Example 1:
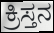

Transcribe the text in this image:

ಕ್ರಿಸ್ತನ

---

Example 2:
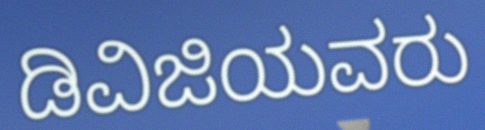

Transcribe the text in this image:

ಡಿವಿಜಿಯವರು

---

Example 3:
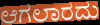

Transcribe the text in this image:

ಆಗಲಾರದು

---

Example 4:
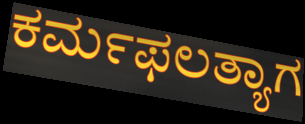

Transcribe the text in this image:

ಕರ್ಮಫಲತ್ಯಾಗ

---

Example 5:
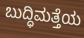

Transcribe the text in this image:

ಬುದ್ಧಿಮತ್ತೆಯ